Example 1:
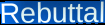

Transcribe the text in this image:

Rebuttal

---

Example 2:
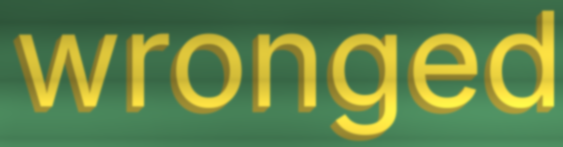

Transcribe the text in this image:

wronged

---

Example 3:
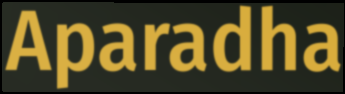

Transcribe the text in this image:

Aparadha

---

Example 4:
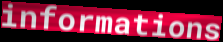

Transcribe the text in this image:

informations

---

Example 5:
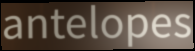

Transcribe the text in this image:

antelopes